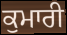
ਕੁਮਾਰੀ